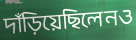
দাঁড়িয়েছিলেনও